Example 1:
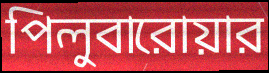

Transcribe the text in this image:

পিলুবারোয়ার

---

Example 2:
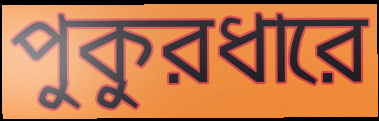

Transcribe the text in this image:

পুকুরধারে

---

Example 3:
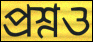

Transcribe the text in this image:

প্রশ্নও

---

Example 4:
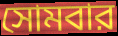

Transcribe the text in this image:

সোমবার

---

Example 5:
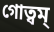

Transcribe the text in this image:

গোত্বম্